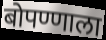
बोपण्णाला